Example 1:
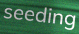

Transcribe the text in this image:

seeding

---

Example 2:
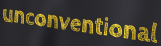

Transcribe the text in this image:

unconventional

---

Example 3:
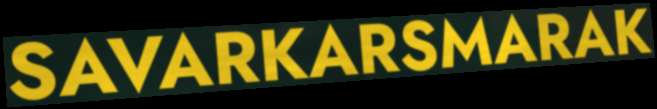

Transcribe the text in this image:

SAVARKARSMARAK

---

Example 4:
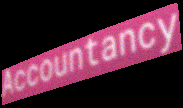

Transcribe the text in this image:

Accountancy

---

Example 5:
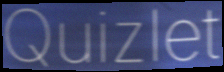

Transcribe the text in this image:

Quizlet